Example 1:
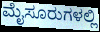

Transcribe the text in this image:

ಮೈಸೂರುಗಳಲ್ಲಿ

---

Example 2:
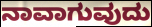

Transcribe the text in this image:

ನಾವಾಗುವುದು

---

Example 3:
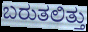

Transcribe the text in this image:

ಬರುತಲಿತ್ತು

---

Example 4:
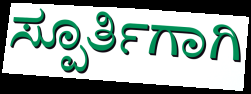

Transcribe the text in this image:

ಸ್ಪೂರ್ತಿಗಾಗಿ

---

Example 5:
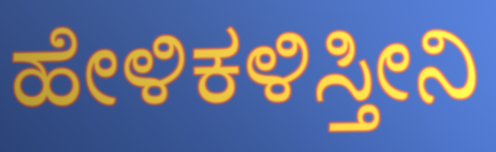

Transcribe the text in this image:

ಹೇಳಿಕಳಿಸ್ತೀನಿ